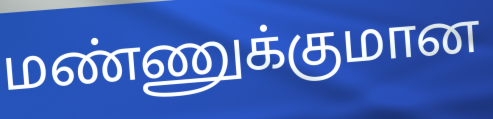
மண்ணுக்குமான